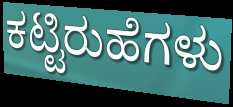
ಕಟ್ಟಿರುಹೆಗಳು